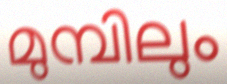
മുമ്പിലും